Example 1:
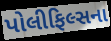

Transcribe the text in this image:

પોલીફિલ્સના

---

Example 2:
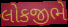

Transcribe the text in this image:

લોકજીભે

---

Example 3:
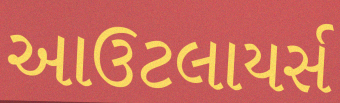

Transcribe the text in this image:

આઉટલાયર્સ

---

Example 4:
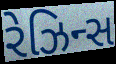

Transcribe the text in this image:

રેઝિન્સ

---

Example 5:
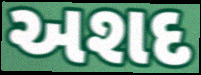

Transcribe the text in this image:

અશદ